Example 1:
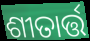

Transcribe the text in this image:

ଶୀତାର୍ତ୍ତ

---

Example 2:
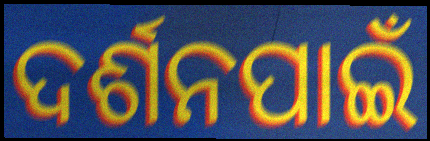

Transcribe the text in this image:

ଦର୍ଶନପାଇଁ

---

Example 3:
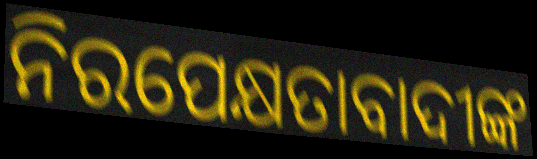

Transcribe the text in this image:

ନିରପେକ୍ଷତାବାଦୀଙ୍କ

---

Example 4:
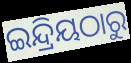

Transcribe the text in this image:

ଇନ୍ଦ୍ରିୟଠାରୁ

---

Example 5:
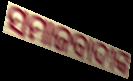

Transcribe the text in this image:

ସମାଜବାଦୀଙ୍କ